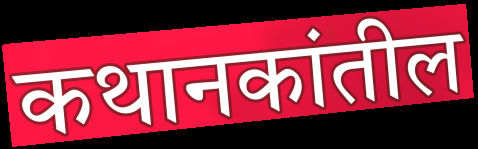
कथानकांतील